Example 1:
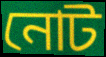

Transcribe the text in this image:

নোট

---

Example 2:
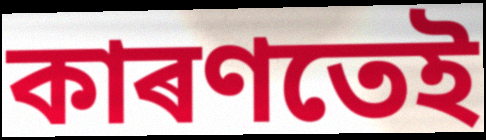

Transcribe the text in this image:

কাৰণতেই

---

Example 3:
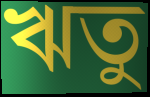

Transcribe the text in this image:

ঋতু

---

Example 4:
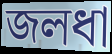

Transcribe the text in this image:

জলধা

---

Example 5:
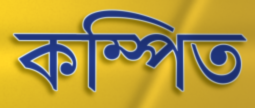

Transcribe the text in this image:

কম্পিত